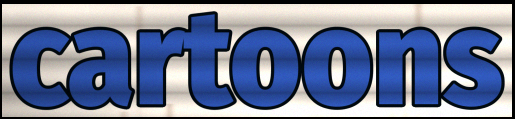
cartoons